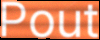
Pout